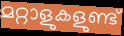
മറ്റാളുകളുണ്ട്